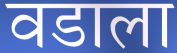
वडाला